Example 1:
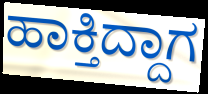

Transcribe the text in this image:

ಹಾಕ್ತಿದ್ದಾಗ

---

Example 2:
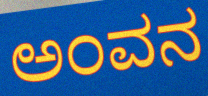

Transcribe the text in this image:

ಅಂವನ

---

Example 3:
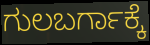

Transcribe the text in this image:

ಗುಲಬರ್ಗಾಕ್ಕೆ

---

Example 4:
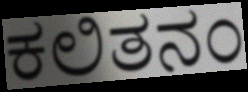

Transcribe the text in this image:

ಕಲಿತನಂ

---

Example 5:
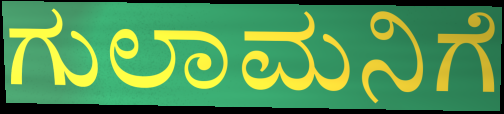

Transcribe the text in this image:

ಗುಲಾಮನಿಗೆ